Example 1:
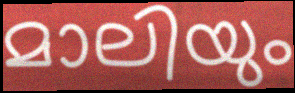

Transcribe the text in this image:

മാലിയും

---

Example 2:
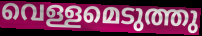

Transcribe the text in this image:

വെള്ളമെടുത്തു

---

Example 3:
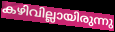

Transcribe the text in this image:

കഴിവില്ലായിരുന്നു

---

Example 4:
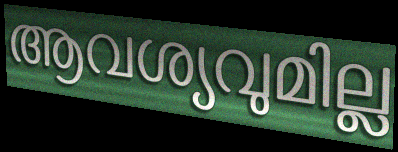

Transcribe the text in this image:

ആവശ്യവുമില്ല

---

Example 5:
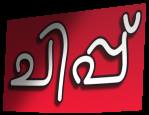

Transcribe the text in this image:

ചിപ്പ്